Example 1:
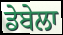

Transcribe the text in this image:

ਡੇਬੇਲਾ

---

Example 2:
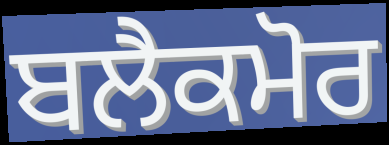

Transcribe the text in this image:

ਬਲੈਕਮੋਰ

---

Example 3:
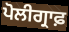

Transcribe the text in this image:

ਪੋਲੀਗ੍ਰਾਫ਼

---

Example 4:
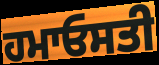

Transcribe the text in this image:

ਹਮਾਓਸਤੀ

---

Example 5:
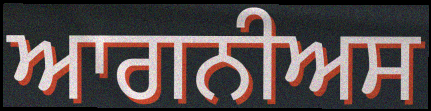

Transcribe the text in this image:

ਆਗਨੀਅਸ